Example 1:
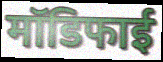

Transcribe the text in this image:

मॉडिफाई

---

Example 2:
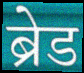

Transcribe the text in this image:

ब्रेड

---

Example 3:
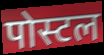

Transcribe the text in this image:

पोस्टल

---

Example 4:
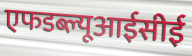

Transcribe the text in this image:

एफडब्ल्यूआईसीई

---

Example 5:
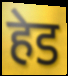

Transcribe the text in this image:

हेड